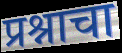
प्रश्नाचा